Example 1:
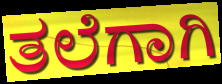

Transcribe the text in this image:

ತಲೆಗಾಗಿ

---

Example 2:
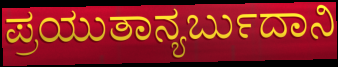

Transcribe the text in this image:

ಪ್ರಯುತಾನ್ಯರ್ಬುದಾನಿ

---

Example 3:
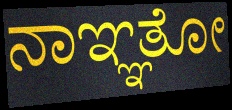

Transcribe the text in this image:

ನಾಞ್ಞತೋ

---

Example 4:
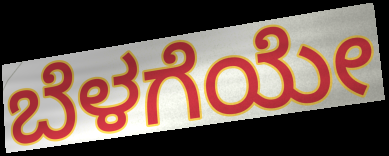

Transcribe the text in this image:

ಬೆಳಗೆಯೇ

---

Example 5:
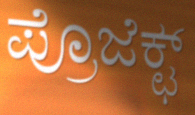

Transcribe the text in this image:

ಪ್ರೊಜೆಕ್ಟ್